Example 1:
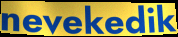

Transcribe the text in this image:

nevekedik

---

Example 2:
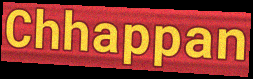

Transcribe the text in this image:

Chhappan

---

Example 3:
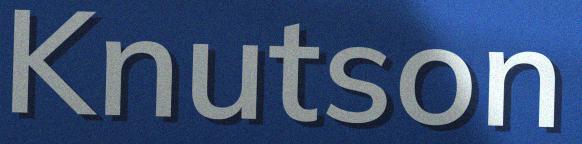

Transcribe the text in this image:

Knutson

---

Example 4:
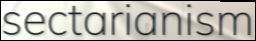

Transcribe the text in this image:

sectarianism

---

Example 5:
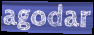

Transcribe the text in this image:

agodar